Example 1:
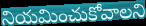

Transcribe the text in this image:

నియమించుకోవాలని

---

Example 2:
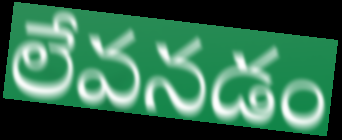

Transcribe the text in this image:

లేవనడం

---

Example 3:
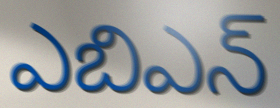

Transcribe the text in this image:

ఎబిఎన్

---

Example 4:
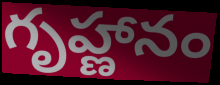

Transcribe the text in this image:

గృహ్ణానం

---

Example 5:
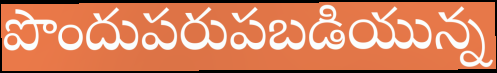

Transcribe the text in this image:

పొందుపరుపబడియున్న